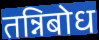
तन्निबोध